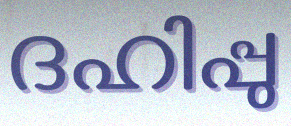
ദഹിപ്പു